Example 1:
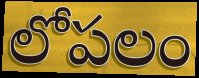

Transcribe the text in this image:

లోపలం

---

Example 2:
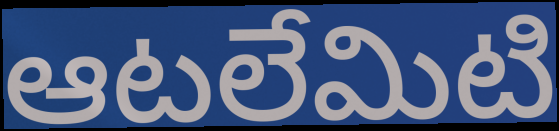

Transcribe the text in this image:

ఆటలేమిటి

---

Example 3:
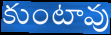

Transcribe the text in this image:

కుంటావు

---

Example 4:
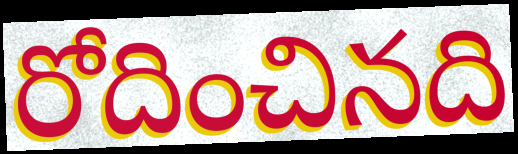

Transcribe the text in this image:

రోదించినది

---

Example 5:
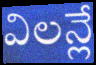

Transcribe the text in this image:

విలన్లే